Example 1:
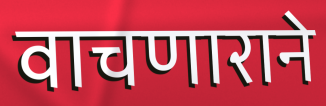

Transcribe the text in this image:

वाचणाराने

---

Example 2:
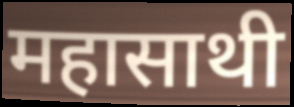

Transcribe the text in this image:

महासाथी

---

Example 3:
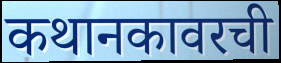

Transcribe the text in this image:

कथानकावरची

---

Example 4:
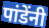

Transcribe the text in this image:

पांडेंनी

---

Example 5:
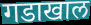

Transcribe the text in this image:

गडाखाल